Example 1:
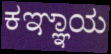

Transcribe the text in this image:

ಕಞ್ಞಾಯ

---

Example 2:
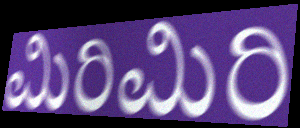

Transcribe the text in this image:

ಮಿರಿಮಿರಿ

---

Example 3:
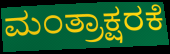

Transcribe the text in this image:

ಮಂತ್ರಾಕ್ಷರಕೆ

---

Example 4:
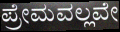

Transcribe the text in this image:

ಪ್ರೇಮವಲ್ಲವೇ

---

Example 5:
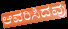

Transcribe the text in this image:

ಆವರಿಸಿದವು